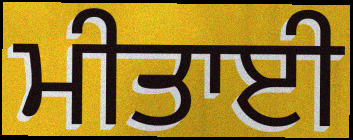
ਮੀਤਾਈ